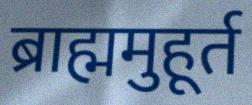
ब्राह्ममुहूर्त